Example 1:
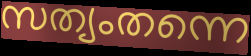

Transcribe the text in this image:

സത്യംതന്നെ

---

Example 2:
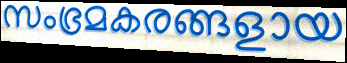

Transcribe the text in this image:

സംഭ്രമകരങ്ങളായ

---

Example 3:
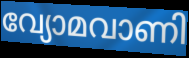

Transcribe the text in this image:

വ്യോമവാണി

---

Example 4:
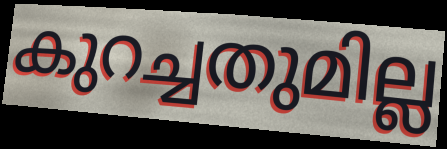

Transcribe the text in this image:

കുറച്ചതുമില്ല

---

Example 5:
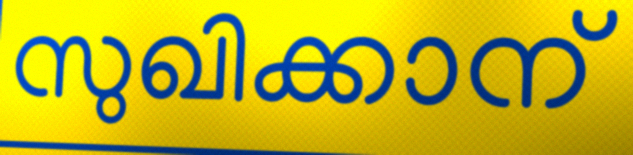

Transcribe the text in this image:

സുഖിക്കാന്